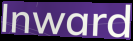
Inward